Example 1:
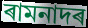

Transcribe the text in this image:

ৰামনাদৰ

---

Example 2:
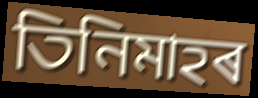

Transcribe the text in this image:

তিনিমাহৰ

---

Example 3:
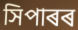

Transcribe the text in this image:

সিপাৰৰ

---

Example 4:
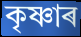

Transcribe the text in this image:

কৃষ্ণাৰ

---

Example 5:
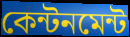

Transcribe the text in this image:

কেন্টনমেন্ট